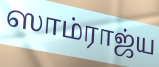
ஸாம்ராஜ்ய